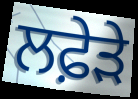
ਲਫ਼ੇੜੇ